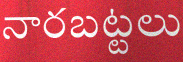
నారబట్టలు